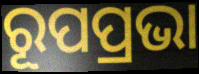
ରୂପପ୍ରଭା